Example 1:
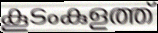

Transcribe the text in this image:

കൂടംകുളത്ത്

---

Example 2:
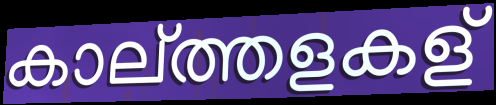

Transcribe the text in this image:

കാല്ത്തളകള്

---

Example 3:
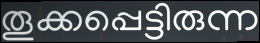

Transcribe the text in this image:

തൂക്കപ്പെട്ടിരുന്ന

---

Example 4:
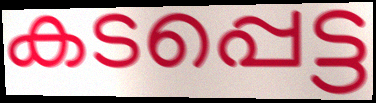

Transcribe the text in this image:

കടപ്പെട്ട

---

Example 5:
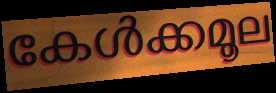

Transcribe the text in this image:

കേൾക്കമൂല